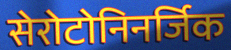
सेरोटोनिनर्जिक